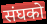
संघको